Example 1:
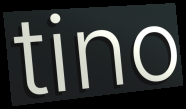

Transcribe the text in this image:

tino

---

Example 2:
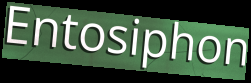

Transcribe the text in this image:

Entosiphon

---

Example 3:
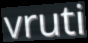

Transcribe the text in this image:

vruti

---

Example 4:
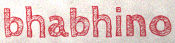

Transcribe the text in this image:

bhabhino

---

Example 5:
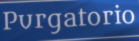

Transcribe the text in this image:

Purgatorio